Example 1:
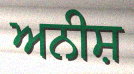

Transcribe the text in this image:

ਅਨੀਸ਼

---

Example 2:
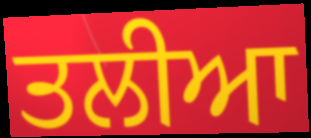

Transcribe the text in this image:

ਤਲੀਆ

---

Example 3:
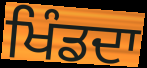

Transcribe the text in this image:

ਖਿੰਡਦਾ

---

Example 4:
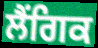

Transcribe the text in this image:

ਲੈਂਗਿਕ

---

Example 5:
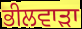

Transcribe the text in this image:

ਭੀਲਵਾੜਾ